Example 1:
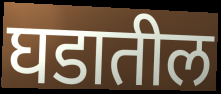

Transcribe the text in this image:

घडातील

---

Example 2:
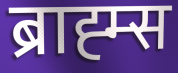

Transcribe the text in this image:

ब्राह्म्स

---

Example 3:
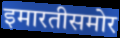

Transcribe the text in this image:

इमारतीसमोर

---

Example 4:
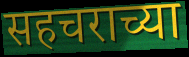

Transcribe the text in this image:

सहचराच्या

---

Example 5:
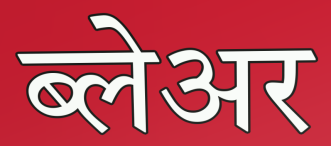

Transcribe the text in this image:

ब्लेअर